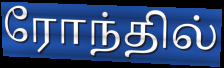
ரோந்தில்